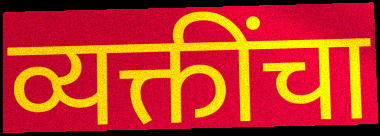
व्यक्तींचा